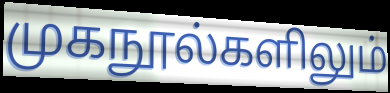
முகநூல்களிலும்